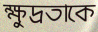
ক্ষুদ্রতাকে